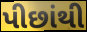
પીછાંથી